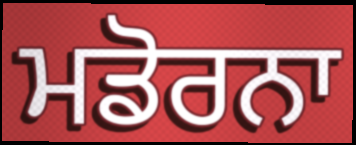
ਮਡੋਰਨਾ